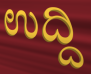
ಉದ್ದಿ